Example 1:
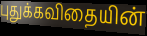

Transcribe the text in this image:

புதுக்கவிதையின்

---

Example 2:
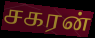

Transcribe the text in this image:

சகரன்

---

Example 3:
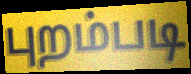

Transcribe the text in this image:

புறம்படி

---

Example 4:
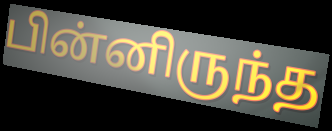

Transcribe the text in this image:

பின்னிருந்த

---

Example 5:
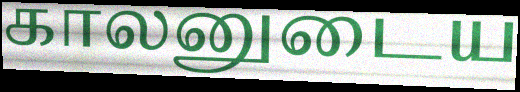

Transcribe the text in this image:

காலனுடைய